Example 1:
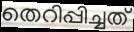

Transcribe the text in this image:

തെറിപ്പിച്ചത്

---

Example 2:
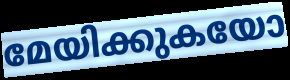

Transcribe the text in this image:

മേയിക്കുകയോ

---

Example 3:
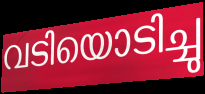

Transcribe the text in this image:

വടിയൊടിച്ചു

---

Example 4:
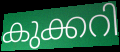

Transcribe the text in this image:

കുക്കറി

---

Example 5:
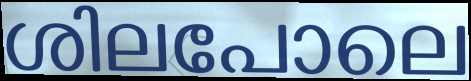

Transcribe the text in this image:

ശിലപോലെ